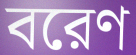
বরেণ